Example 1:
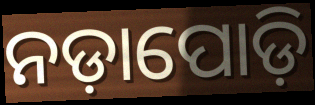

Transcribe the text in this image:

ନଡ଼ାପୋଡ଼ି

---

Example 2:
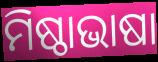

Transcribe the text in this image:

ମିଷ୍ଠାଭାଷା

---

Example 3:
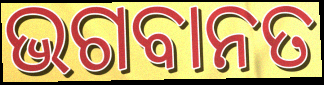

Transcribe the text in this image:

ଭଗବାନତ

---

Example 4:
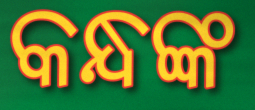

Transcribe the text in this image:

କନ୍ଧଙ୍କ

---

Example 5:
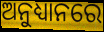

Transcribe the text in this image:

ଅନୁଧ୍ୟାନରେ